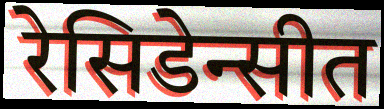
रेसिडेन्सीत